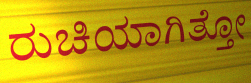
ರುಚಿಯಾಗಿತ್ತೋ